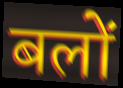
बलों